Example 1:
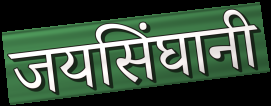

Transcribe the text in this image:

जयसिंघानी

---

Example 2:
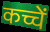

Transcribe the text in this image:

कच्चें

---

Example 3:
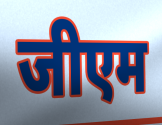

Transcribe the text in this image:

जीएम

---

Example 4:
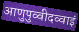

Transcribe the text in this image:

आणुपुव्वीदव्वाइं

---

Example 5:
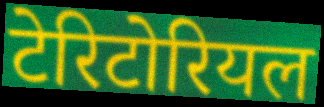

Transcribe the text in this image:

टेरिटोरियल